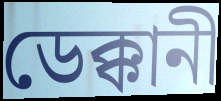
ডেক্কানী